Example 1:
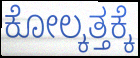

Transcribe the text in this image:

ಕೋಲ್ಕತ್ತಕ್ಕೆ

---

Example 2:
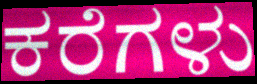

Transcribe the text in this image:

ಕರೆಗಳು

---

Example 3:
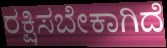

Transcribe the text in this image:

ರಕ್ಷಿಸಬೇಕಾಗಿದೆ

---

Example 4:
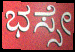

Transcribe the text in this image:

ಭಸ್ಸೇ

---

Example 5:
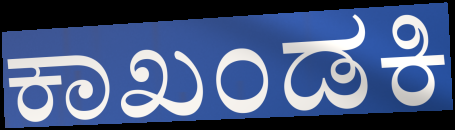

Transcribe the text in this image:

ಕಾಖಂಡಕಿ